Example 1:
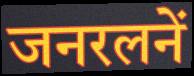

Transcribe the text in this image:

जनरलनें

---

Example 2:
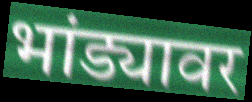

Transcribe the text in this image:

भांड्यावर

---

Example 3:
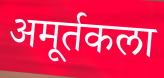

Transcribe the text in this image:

अमूर्तकला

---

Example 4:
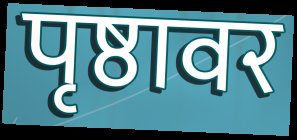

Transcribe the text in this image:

पृष्ठावर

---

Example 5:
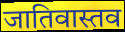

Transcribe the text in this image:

जातिवास्तव